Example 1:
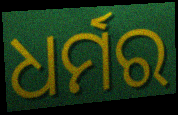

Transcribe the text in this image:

ଧର୍ମର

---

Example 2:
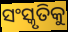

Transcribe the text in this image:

ସଂସ୍କୃତିକୁ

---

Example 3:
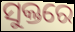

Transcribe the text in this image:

ସୁକ୍ତରେ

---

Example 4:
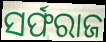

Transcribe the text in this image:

ସର୍ଫରାଜ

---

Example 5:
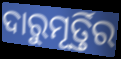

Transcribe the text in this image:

ଦାରୁମୂର୍ତ୍ତିର